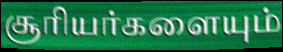
சூரியர்களையும்